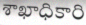
శాఖాధికారి